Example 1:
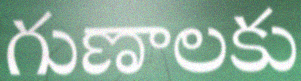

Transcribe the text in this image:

గుణాలకు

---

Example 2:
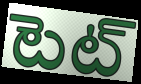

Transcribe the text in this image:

టెట్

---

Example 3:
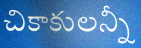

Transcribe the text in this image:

చికాకులన్నీ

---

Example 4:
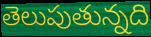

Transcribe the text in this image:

తెలుపుతున్నది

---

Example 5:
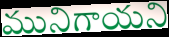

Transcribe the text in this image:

మునిగాయని